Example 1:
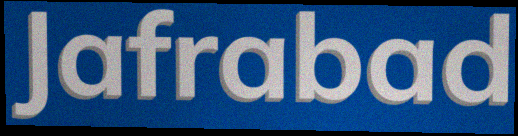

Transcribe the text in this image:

Jafrabad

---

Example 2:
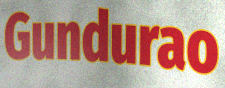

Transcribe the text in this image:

Gundurao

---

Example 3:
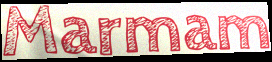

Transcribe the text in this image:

Marmam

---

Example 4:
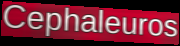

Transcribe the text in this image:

Cephaleuros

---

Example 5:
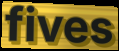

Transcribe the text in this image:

fives